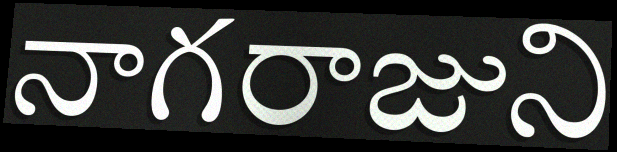
నాగరాజుని